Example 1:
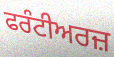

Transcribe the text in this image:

ਫਰੰਟੀਅਰਜ਼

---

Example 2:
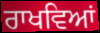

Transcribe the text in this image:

ਰਾਖਵਿਆਂ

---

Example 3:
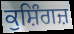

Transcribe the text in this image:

ਕੁਸ਼ਿੰਗਜ਼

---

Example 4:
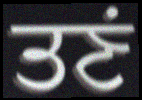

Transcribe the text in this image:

ਤਣਂ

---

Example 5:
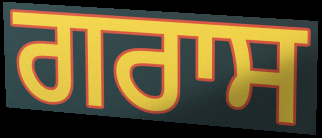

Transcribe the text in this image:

ਗਰਾਸ